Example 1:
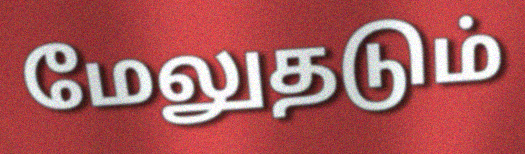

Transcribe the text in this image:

மேலுதடும்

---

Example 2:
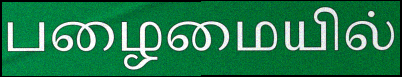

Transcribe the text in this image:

பழைமையில்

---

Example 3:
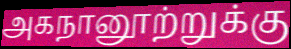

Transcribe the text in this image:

அகநானூற்றுக்கு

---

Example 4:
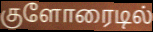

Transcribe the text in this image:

குளோரைடில்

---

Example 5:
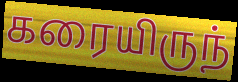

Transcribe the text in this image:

கரையிருந்